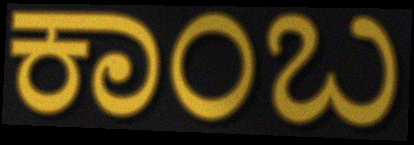
ಕಾಂಬ